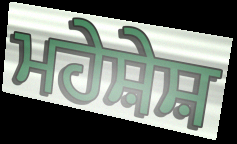
ਮਹੇਸ਼ੇਸ਼